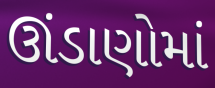
ઊંડાણોમાં